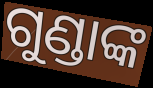
ଗୁଣ୍ଡାଙ୍କ